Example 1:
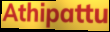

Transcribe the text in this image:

Athipattu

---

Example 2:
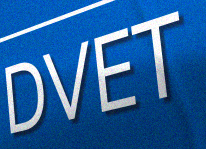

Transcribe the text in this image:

DVET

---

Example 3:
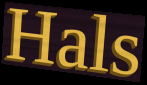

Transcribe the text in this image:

Hals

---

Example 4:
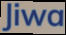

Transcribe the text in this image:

Jiwa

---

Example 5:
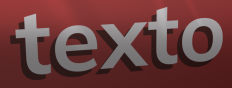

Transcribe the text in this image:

texto